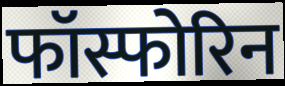
फॉस्फोरिन